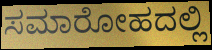
ಸಮಾರೋಹದಲ್ಲಿ